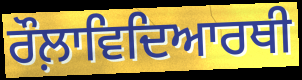
ਰੌਲ਼ਾਵਿਦਿਆਰਥੀ